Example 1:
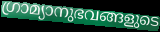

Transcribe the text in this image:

ഗ്രാമ്യാനുഭവങ്ങളുടെ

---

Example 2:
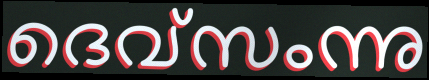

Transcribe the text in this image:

ദെവ്സംന്നു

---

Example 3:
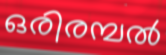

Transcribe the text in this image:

ഒരിരമ്പൽ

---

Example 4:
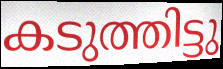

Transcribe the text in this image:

കടുത്തിട്ടു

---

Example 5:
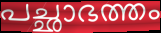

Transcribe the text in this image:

പച്ഛാഭത്തം